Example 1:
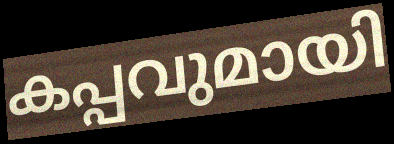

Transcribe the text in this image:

കപ്പവുമായി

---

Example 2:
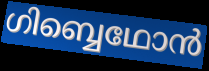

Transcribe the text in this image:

ഗിബ്ബെഥോൻ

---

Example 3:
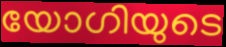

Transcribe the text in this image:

യോഗിയുടെ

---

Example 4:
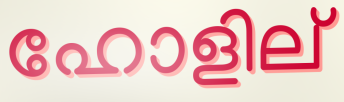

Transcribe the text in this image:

ഹോളില്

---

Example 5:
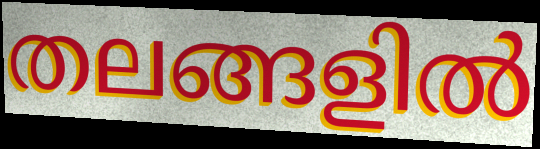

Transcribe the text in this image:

തലങ്ങളിൽ